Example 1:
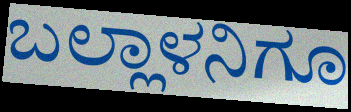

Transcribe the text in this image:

ಬಲ್ಲಾಳನಿಗೂ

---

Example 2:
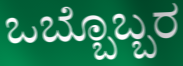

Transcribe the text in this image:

ಒಬ್ಬೊಬ್ಬರ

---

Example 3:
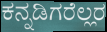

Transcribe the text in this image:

ಕನ್ನಡಿಗರೆಲ್ಲರ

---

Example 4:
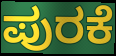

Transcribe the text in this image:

ಪುರಕೆ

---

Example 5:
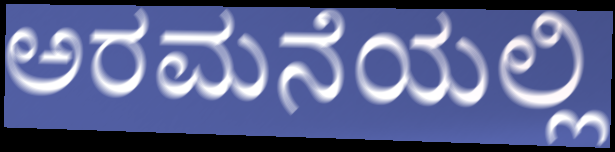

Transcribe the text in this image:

ಅರಮನೆಯಲ್ಲಿ